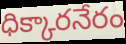
ధిక్కారనేరం